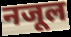
नजूल